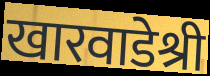
खारवाडेश्री